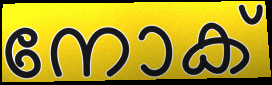
നോക്